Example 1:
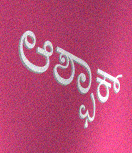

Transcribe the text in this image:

ಆಶ್ಫಾಕ್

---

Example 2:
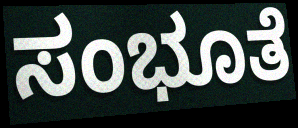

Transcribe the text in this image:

ಸಂಭೂತೆ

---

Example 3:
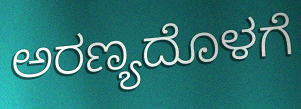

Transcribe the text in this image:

ಅರಣ್ಯದೊಳಗೆ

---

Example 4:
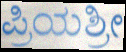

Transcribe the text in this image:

ಪ್ರಿಯಶ್ರೀ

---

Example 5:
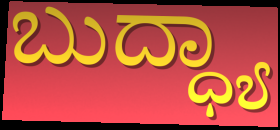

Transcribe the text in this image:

ಬುದ್ಧ್ಯಾ